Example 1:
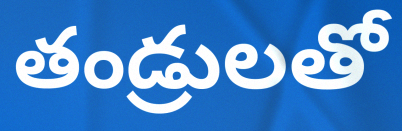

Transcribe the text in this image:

తండ్రులతో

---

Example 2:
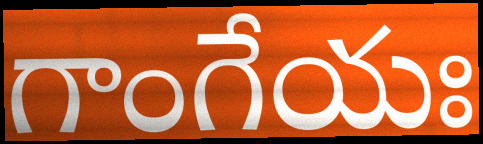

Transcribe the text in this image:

గాంగేయః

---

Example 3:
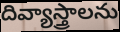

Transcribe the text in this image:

దివ్యాస్త్రాలను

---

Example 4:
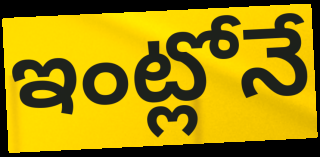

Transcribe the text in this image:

ఇంట్లోనే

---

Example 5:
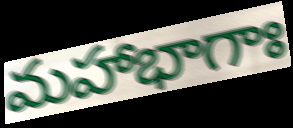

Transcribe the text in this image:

మహాభాగాః